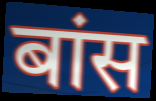
बांस